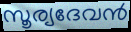
സൂര്യദേവൻ